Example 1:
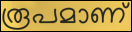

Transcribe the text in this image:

രൂപമാണ്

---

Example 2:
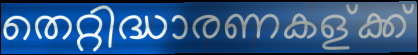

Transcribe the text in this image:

തെറ്റിദ്ധാരണകള്ക്ക്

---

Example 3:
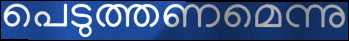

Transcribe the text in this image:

പെടുത്തണമെന്നു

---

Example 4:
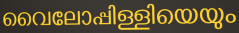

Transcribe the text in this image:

വൈലോപ്പിള്ളിയെയും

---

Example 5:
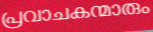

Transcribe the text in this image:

പ്രവാചകന്മാരും